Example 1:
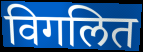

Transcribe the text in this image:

विगलित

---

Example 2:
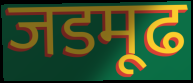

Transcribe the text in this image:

जडमूढ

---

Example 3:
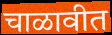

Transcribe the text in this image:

चाळावीत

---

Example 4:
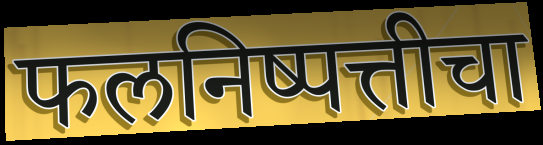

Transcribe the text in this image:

फलनिष्पत्तीचा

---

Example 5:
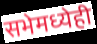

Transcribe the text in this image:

सभेमध्येही